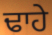
ਢਾਹੇ